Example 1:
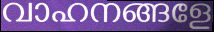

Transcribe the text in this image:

വാഹനങ്ങളേ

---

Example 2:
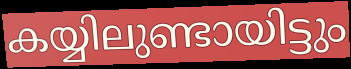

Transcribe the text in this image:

കയ്യിലുണ്ടായിട്ടും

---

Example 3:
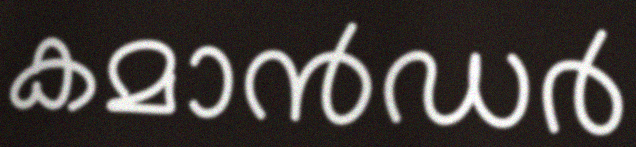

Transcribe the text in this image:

കമാൻഡർ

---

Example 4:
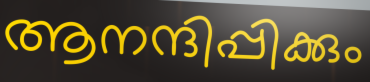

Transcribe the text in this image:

ആനന്ദിപ്പിക്കും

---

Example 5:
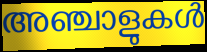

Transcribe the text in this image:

അഞ്ചാളുകൾ